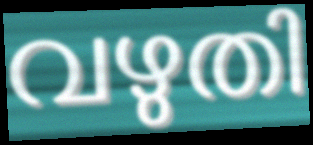
വഴുതി